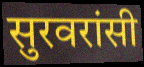
सुरवरांसी